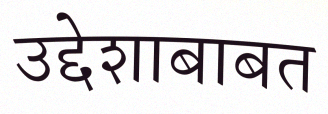
उद्देशाबाबत